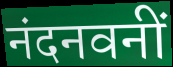
नंदनवनीं